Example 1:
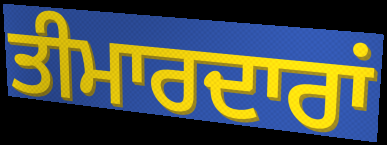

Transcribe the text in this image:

ਤੀਮਾਰਦਾਰਾਂ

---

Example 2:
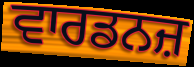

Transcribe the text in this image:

ਵਾਰਡਨਜ਼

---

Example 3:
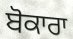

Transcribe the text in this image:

ਬੋਕਾਰਾ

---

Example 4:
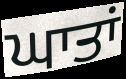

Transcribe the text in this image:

ਘਾਤਾਂ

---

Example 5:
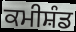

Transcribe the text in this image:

ਕਮੀਸ਼ੰਡ